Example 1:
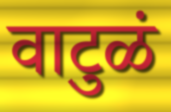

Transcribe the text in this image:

वाटुळं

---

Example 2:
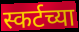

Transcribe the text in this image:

स्कर्टच्या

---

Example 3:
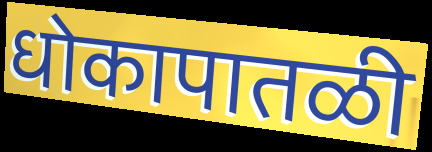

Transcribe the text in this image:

धोकापातळी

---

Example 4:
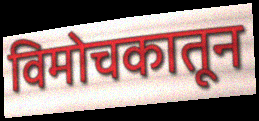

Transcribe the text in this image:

विमोचकातून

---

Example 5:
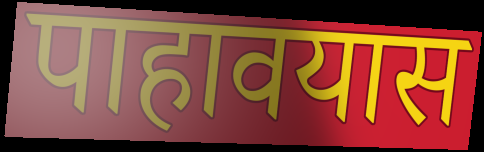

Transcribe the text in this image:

पाहावयास